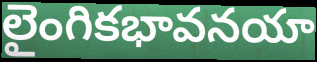
లైంగికభావనయా